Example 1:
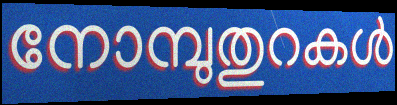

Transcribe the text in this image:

നോമ്പുതുറകൾ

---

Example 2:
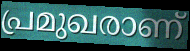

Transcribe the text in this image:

പ്രമുഖരാണ്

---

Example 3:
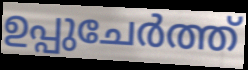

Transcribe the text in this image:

ഉപ്പുചേർത്ത്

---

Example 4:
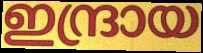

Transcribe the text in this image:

ഇന്ദ്രായ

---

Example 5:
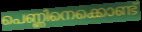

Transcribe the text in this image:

പെണ്ണിനെക്കൊണ്ട്